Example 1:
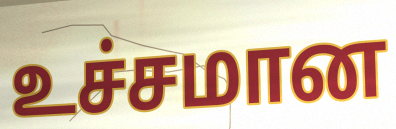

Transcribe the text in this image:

உச்சமான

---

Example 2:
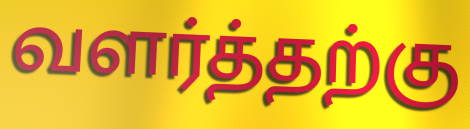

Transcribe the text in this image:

வளர்த்தற்கு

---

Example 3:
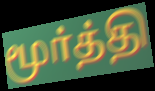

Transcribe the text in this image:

மூர்த்தி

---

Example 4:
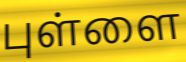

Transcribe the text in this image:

புள்ளை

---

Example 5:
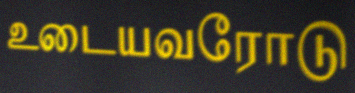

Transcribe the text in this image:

உடையவரோடு